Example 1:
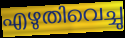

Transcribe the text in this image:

എഴുതിവെച്ചു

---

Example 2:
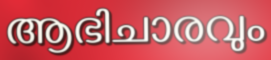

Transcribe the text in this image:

ആഭിചാരവും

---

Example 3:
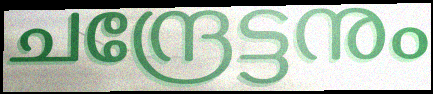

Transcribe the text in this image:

ചന്ദ്രേട്ടനും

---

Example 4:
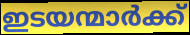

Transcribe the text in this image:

ഇടയന്മാർക്ക്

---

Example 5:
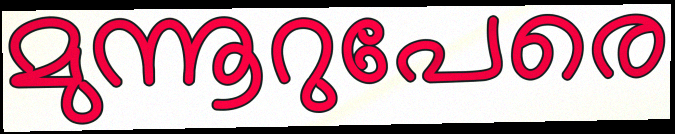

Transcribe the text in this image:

മുന്നൂറുപേരെ